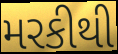
મરકીથી